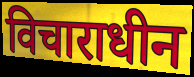
विचाराधीन